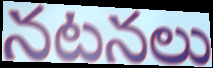
నటనలు